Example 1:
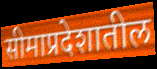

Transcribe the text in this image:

सीमाप्रदेशातील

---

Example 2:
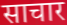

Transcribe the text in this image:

साचार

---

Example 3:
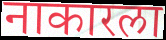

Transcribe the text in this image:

नाकारला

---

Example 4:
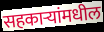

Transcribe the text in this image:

सहकाऱ्यांमधील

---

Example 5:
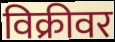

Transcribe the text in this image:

विक्रीवर